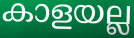
കാളയല്ല